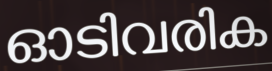
ഓടിവരിക